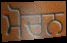
ਮੋਚਨ